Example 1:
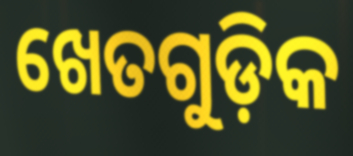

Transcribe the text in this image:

ଖେତଗୁଡ଼ିକ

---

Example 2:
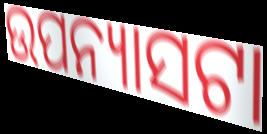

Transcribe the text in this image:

ଉପନ୍ୟାସଟା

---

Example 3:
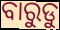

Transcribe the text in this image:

ବାରୁଡୁ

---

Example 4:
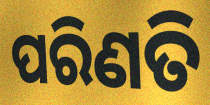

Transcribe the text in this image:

ପରିଣତି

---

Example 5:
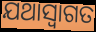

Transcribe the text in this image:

ଯଥାସ୍ଵାଗତ